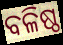
ବଳିଷ୍ଠ